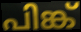
പിങ്ക്